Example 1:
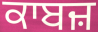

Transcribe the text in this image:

ਕਾਬਜ਼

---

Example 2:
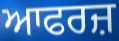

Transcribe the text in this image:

ਆਫਰਜ਼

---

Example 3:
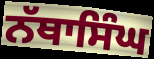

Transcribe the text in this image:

ਨੱਥਾਸਿੰਘ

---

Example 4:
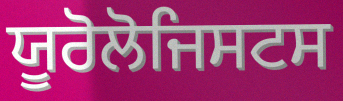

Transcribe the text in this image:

ਯੂਰੋਲੋਜਿਸਟਸ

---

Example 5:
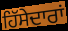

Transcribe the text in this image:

ਹਿੱਸੇਦਾਰਾਂ